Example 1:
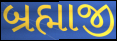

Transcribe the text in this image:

બ્રહ્માજી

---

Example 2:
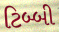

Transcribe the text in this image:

ટિબ્બી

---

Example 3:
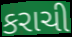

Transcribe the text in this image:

કરાચી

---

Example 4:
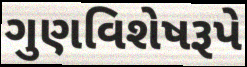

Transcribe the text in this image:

ગુણવિશેષરૂપે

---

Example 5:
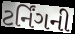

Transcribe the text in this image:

ટર્નિંગની